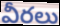
వీరలు